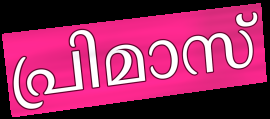
പ്രിമാസ്